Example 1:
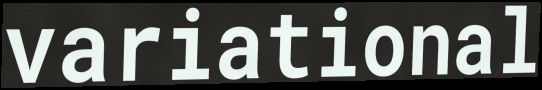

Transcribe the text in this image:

variational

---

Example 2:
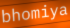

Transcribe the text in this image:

bhomiya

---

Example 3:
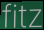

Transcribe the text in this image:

fitz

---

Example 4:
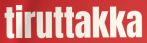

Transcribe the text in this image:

tiruttakka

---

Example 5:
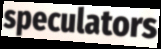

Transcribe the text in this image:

speculators